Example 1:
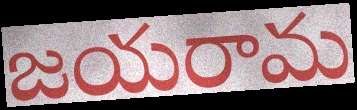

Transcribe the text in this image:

జయరామ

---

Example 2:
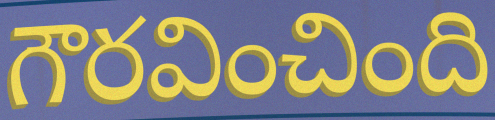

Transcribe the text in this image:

గౌరవించింది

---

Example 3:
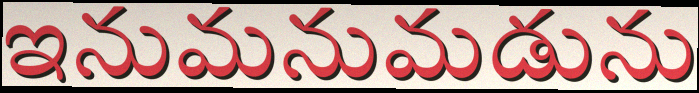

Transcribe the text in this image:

ఇనుమనుమడును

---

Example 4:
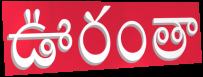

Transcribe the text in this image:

ఊరంతా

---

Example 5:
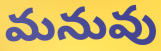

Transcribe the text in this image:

మనువు